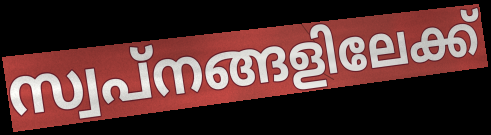
സ്വപ്നങ്ങളിലേക്ക്